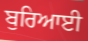
ਬੁਰਿਆਈ